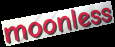
moonless